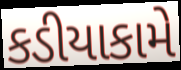
કડીયાકામે